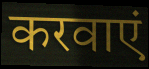
करवाएं